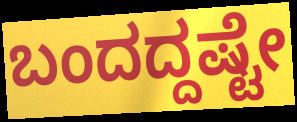
ಬಂದದ್ದಷ್ಟೇ